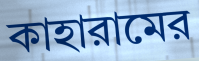
কাহারামের